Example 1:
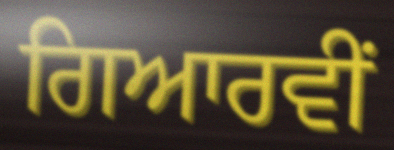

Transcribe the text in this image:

ਗਿਆਰਵੀਂ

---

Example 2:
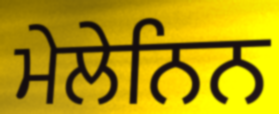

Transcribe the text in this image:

ਮੇਲੇਨਿਨ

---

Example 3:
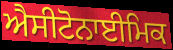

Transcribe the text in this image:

ਐਸੀਟੋਨਾਈਮਿਕ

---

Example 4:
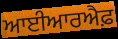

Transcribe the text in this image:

ਆਈਆਰਐਫ਼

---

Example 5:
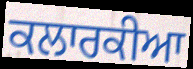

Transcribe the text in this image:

ਕਲਾਰਕੀਆ